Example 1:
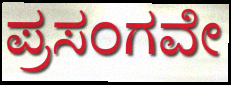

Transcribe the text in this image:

ಪ್ರಸಂಗವೇ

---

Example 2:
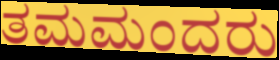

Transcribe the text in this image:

ತಮಮಂದರು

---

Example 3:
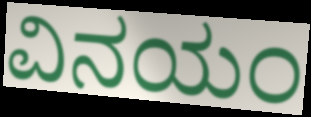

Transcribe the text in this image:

ವಿನಯಂ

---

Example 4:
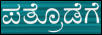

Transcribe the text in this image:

ಪತ್ರೊಡೆಗೆ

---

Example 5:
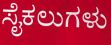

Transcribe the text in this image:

ಸೈಕಲುಗಳು